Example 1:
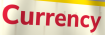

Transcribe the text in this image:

Currency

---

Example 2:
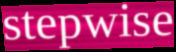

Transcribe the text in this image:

stepwise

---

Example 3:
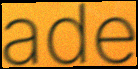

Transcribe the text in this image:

ade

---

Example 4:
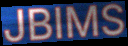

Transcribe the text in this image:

JBIMS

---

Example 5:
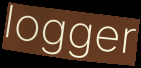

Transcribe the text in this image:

logger